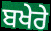
ਬਖੇਰੇ